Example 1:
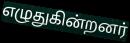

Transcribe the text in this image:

எழுதுகின்றனர்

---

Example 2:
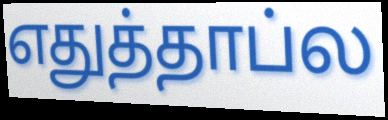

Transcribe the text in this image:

எதுத்தாப்ல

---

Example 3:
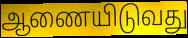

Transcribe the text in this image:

ஆணையிடுவது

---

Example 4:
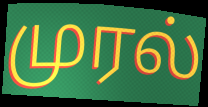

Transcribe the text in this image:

முரல்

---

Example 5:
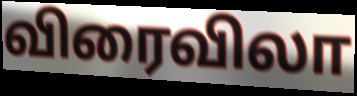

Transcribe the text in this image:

விரைவிலா